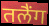
तलैंग